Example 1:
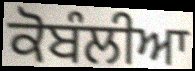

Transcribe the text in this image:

ਕੋਬੰਲੀਆ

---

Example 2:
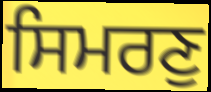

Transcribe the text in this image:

ਸਿਮਰਣੁ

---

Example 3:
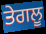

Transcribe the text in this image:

ਤੇਗਲੂ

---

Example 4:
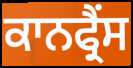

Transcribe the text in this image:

ਕਾਨਫ੍ਰੈਂਸ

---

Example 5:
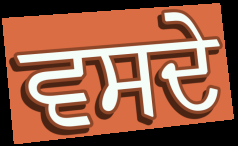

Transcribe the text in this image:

ਵਸਦੇ